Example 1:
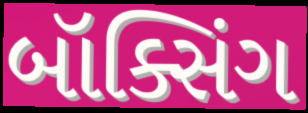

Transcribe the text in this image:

બૉક્સિંગ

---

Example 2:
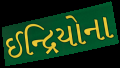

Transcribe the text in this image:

ઈન્દ્રિયોના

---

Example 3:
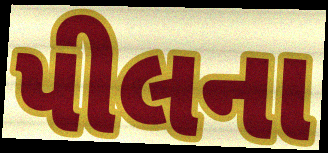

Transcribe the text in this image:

પીલના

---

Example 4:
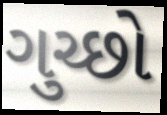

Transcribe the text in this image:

ગુચ્છો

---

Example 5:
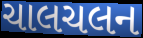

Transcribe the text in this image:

ચાલચલન